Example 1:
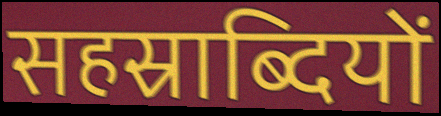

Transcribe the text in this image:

सहस्राब्दियों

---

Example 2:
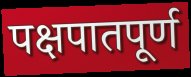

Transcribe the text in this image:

पक्षपातपूर्ण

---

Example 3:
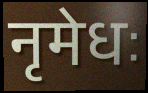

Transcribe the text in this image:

नृमेधः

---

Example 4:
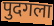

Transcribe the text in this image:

पुदगला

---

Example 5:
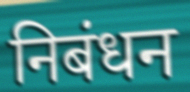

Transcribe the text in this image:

निबंधन